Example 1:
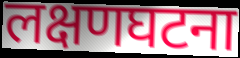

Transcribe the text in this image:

लक्षणघटना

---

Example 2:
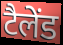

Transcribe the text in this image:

टैलेंड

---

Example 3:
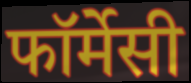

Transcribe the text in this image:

फॉर्मेसी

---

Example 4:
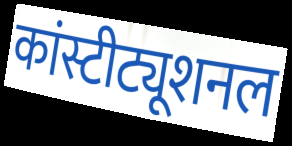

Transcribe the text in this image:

कांस्टीट्यूशनल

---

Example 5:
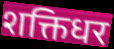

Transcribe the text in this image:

शक्तिधर